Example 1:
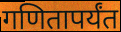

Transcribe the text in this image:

गणितापर्यंत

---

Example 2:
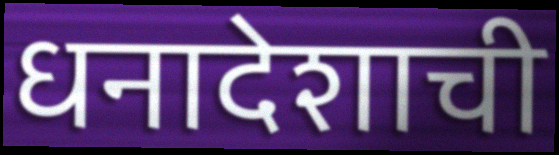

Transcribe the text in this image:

धनादेशाची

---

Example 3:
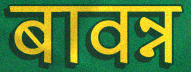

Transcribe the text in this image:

बावन्न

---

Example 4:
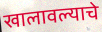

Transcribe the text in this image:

खालावल्याचे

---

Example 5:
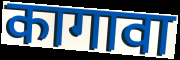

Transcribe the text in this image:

कागावा